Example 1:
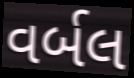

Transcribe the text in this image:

વર્બલ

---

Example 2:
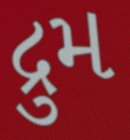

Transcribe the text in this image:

દ્રુમ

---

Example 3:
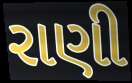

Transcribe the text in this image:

રાણી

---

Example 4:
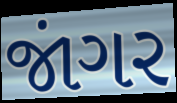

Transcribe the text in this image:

જાંગર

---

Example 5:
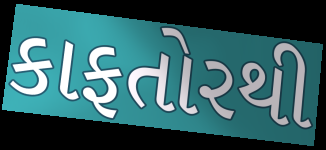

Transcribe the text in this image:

કાફતોરથી